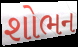
શોભન